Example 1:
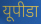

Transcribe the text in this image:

यूपीडा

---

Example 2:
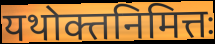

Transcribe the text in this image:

यथोक्तनिमित्तः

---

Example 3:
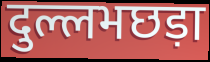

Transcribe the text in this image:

दुल्लभछड़ा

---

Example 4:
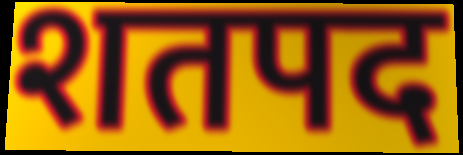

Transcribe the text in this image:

शतपद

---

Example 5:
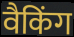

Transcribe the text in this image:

वैकिंग